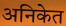
अनिकेत